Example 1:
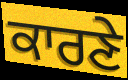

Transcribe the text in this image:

ਕਾਰਣੇ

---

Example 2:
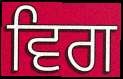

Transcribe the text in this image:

ਵਿਗ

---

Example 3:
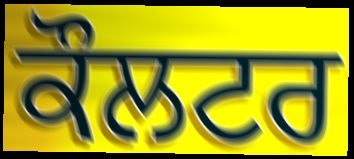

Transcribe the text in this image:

ਕੌਲਟਰ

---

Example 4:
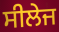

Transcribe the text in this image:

ਸੀਲੇਜ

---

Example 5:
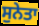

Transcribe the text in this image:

ਸੁਨੇਤਾ